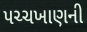
પચ્ચખાણની